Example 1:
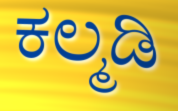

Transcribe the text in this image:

ಕಲ್ಮಡಿ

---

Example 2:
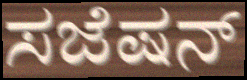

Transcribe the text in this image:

ಸಜೆಷನ್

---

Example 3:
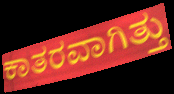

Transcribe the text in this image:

ಕಾತರವಾಗಿತ್ತು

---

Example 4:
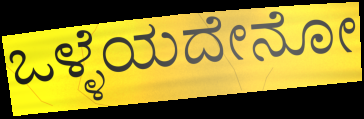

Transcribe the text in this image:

ಒಳ್ಳೆಯದೇನೋ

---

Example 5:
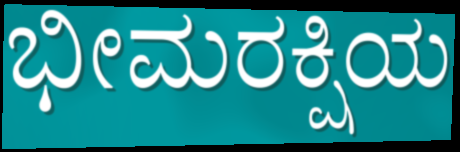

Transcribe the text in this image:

ಭೀಮರಕ್ಷಿಯ